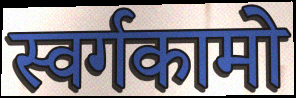
स्वर्गकामो